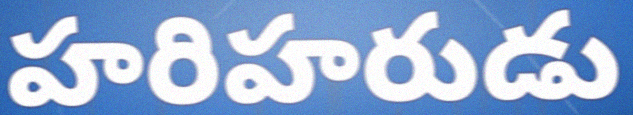
హరిహరుడు